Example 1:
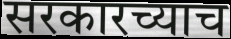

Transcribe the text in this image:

सरकारच्याच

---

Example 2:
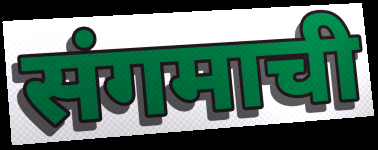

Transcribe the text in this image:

संगमाची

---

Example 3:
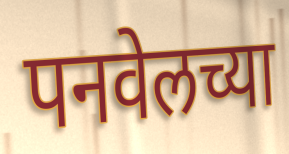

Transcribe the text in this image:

पनवेलच्या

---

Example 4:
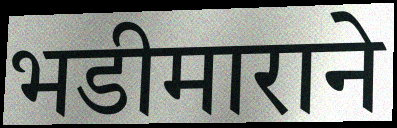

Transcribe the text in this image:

भडीमाराने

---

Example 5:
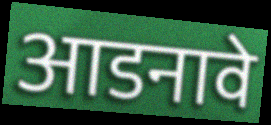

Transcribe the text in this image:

आडनावे